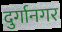
दुर्गानगर